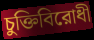
চুক্তিবিরোধী